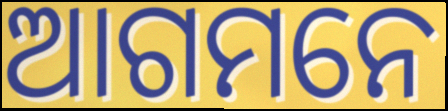
ଆଗମନେ